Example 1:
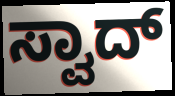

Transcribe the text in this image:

ಸ್ವಾದ್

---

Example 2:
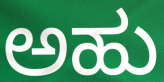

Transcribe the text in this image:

ಅಹು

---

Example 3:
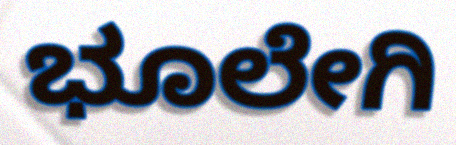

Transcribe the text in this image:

ಭೂಲೇಗಿ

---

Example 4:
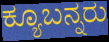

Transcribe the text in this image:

ಕ್ಯೂಬನ್ನರು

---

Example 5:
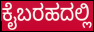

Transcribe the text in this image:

ಕೈಬರಹದಲ್ಲಿ